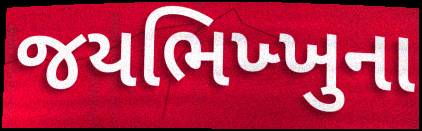
જયભિખ્ખુના